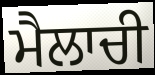
ਮੈਲਾਚੀ